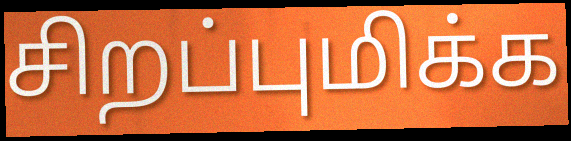
சிறப்புமிக்க